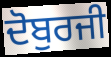
ਦੋਬੁਰਜੀ